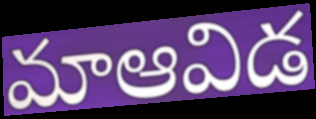
మాఆవిడ